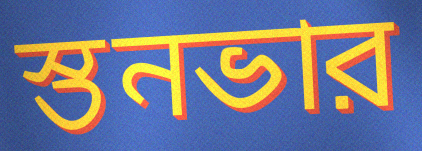
স্তনভার